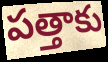
పత్తాకు